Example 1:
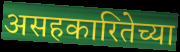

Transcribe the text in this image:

असहकारितेच्या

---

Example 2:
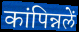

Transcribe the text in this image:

कांपिन्नलें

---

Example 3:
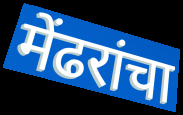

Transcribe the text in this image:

मेंढरांचा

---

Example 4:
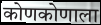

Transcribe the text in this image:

कोणकोणाला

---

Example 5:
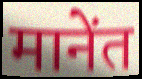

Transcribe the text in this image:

मानेंत